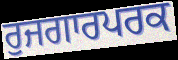
ਰੁਜਗਾਰਪਰਕ